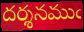
దర్శనముఁ